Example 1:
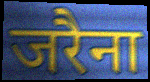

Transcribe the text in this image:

जरैना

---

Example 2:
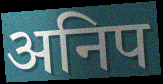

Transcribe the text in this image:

अनिप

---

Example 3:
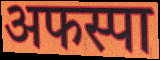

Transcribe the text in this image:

अफस्पा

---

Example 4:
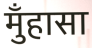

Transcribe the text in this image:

मुँहासा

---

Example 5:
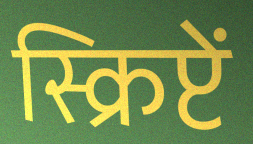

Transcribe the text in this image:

स्क्रिप्टें